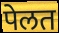
पेलत